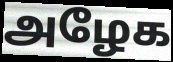
அழேக